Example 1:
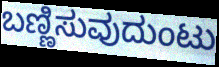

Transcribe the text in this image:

ಬಣ್ಣಿಸುವುದುಂಟು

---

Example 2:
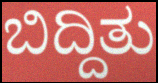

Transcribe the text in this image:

ಬಿದ್ದಿತು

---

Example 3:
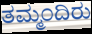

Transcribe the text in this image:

ತಮ್ಮಂದಿರು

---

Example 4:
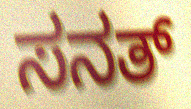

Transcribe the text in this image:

ಸನತ್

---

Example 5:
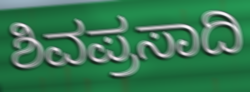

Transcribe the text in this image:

ಶಿವಪ್ರಸಾದಿ